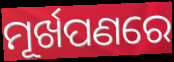
ମୂର୍ଖପଣରେ